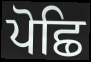
ਪੋਛਿ